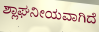
ಶ್ಲಾಘನೀಯವಾಗಿದೆ